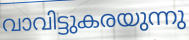
വാവിട്ടുകരയുന്നു